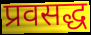
प्रवसद्ध